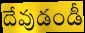
దేవుడండీ